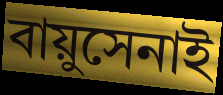
বায়ুসেনাই